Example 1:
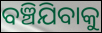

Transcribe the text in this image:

ବଞ୍ଚିଯିବାକୁ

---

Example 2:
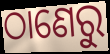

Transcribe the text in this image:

ଠାଣେରୁ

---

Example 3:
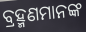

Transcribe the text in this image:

ବ୍ରହ୍ମଣମାନଙ୍କ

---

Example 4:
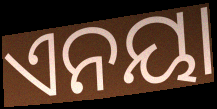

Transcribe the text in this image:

ଏନୟା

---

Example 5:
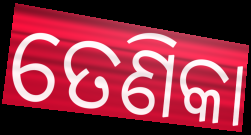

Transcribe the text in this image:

ତେଣିକା